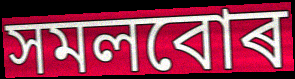
সমলবোৰ